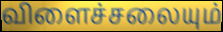
விளைச்சலையும்